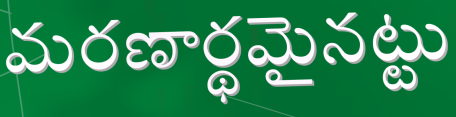
మరణార్థమైనట్టు